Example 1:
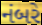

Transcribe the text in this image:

નંબરે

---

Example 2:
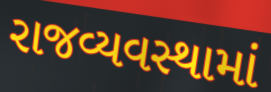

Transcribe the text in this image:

રાજવ્યવસ્થામાં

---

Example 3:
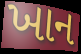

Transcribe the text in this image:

ખાન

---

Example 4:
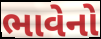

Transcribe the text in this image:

ભાવેનો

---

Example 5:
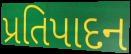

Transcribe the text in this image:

પ્રતિપાદન